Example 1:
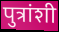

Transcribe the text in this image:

पुत्रांशी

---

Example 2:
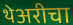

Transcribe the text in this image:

थेअरीचा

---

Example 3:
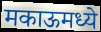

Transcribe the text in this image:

मकाऊमध्ये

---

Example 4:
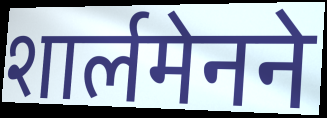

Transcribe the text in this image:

शार्लमेनने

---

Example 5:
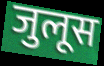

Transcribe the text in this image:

जुलूस